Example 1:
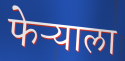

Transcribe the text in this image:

फेऱ्याला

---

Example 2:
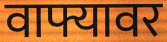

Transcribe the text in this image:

वाफ्यावर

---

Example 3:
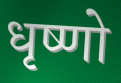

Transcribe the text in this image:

धृष्णो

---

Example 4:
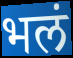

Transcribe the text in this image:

भलं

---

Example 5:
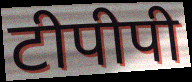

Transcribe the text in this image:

टीपीपी